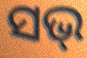
ସଭ୍